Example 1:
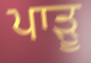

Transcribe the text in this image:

ਪਾੜੂ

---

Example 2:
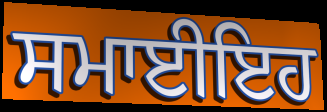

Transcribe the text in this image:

ਸਮਾਈਇਹ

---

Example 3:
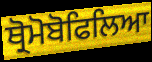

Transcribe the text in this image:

ਥ੍ਰੋਮੋਬੋਫਿਲਿਆ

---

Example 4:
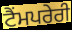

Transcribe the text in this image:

ਟੈਂਮਪਰੇਰੀ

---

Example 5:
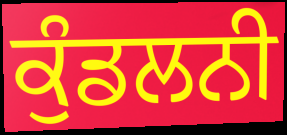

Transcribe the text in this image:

ਕੁੰਡਲਨੀ